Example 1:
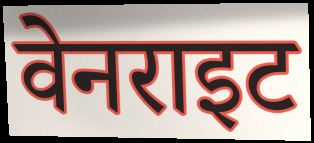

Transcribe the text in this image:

वेनराइट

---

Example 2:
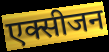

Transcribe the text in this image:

एक्सीजन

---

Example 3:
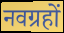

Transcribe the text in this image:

नवग्रहों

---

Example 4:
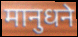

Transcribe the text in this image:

मानुधने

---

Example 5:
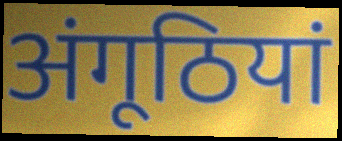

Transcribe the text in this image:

अंगूठियां